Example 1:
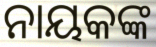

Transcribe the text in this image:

ନାୟକଙ୍କ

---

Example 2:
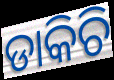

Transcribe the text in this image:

ଡାକିଚି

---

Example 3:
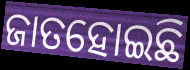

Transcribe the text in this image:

ଜାତହୋଇଛି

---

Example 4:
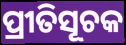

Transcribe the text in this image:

ପ୍ରୀତିସୂଚକ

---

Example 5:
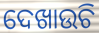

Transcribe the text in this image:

ଦେଖାଉଚି